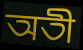
অতী